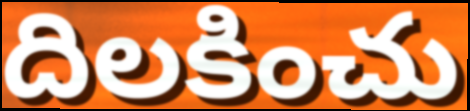
దిలకించు